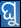
ଘୁ